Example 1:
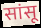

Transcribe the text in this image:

सांसू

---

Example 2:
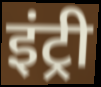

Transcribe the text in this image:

इंट्री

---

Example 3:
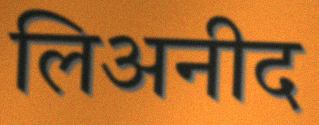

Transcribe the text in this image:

लिअनीद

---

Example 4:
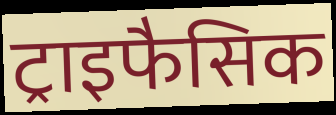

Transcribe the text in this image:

ट्राइफैसिक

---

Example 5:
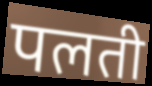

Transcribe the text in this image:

पलती